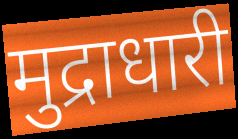
मुद्राधारी